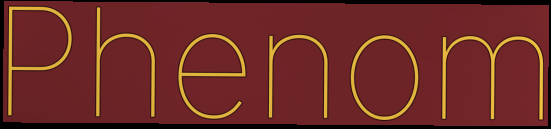
Phenom